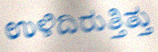
ಉಳಿದಿರುತ್ತಿತ್ತು